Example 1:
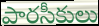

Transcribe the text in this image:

పారసీకులు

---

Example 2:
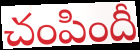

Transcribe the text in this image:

చంపిందీ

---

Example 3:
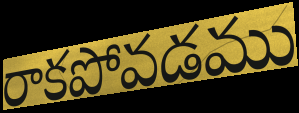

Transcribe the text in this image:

రాకపోవడము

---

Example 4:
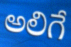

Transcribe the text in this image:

అలిగే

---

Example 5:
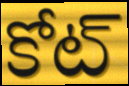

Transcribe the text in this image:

కోట్